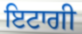
ਇਟਾਗੀ